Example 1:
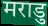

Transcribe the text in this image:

मराडु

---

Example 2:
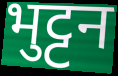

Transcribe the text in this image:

भुट्टन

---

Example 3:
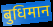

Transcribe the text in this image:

बुधिमान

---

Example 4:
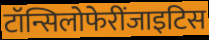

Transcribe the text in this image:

टॉन्सिलोफेरींजाइटिस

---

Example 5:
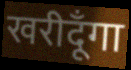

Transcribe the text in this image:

खरीदूँगा